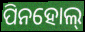
ପିନହୋଲ୍